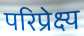
परिप्रेक्ष्य